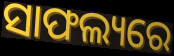
ସାଫଲ୍ୟରେ